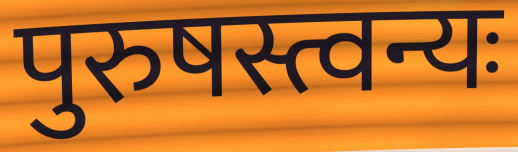
पुरुषस्त्वन्यः